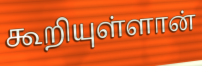
கூறியுள்ளான்